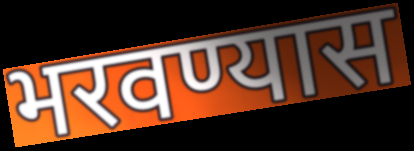
भरवण्यास